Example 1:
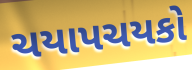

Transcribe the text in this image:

ચયાપચયકો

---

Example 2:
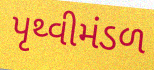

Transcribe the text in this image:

પૃથ્વીમંડળ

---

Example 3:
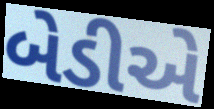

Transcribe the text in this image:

બેડીએ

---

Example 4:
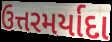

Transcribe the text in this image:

ઉત્તરમર્યાદા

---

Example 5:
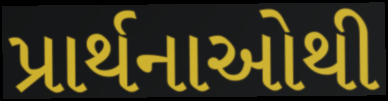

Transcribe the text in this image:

પ્રાર્થનાઓથી